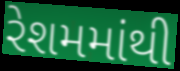
રેશમમાંથી